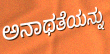
ಅನಾಥತೆಯನ್ನು